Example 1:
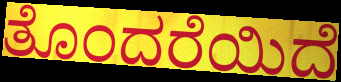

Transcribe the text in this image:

ತೊಂದರೆಯಿದೆ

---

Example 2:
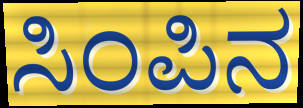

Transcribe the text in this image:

ಸಿಂಪಿನ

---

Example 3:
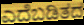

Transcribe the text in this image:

ಎದೆಬಡಿತದ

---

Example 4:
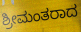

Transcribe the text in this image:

ಶ್ರೀಮಂತರಾದ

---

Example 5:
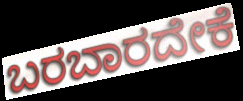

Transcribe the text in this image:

ಬರಬಾರದೇಕೆ